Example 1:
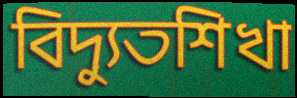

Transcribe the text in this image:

বিদ্যুতশিখা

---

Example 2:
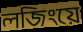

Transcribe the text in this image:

লজিংয়ে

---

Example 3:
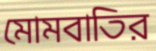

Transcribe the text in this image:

মোমবাতির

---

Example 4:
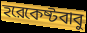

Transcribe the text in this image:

হরেকেষ্টবাবু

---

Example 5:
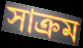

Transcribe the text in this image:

সাক্রম